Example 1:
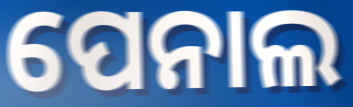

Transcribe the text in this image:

ପେନାଲ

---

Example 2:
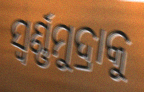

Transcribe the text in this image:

ସ୍ଵର୍ଣ୍ଣମୁଦ୍ରାକୁ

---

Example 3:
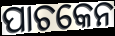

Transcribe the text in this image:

ପାଚକେନ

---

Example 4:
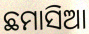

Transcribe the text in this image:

ଛମାସିଆ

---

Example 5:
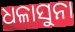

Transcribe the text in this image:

ଧଳାସୁନା